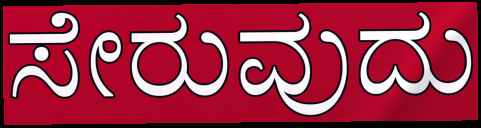
ಸೇರುವುದು